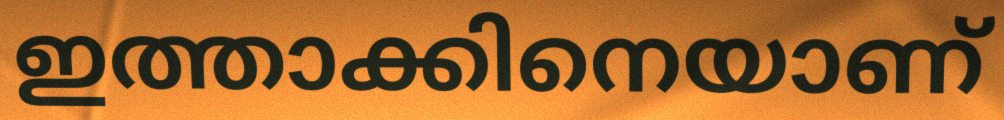
ഇത്താക്കിനെയാണ്